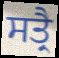
ਸਤ੍ਰੈ